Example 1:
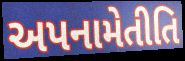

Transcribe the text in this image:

અપનામેતીતિ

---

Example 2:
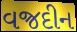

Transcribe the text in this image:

વજ્રદીન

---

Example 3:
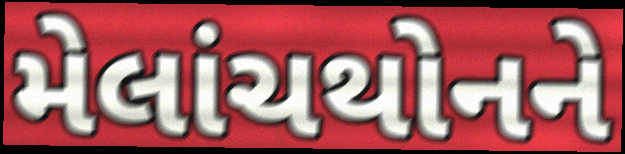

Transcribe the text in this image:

મેલાંચથોનને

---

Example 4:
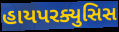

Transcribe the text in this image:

હાયપરક્યુસિસ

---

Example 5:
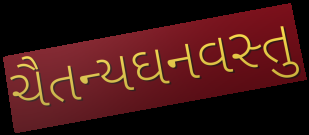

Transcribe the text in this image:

ચૈતન્યઘનવસ્તુ